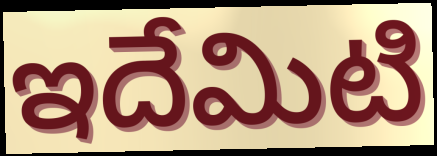
ఇదేమిటి